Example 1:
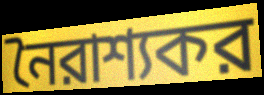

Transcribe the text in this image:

নৈরাশ্যকর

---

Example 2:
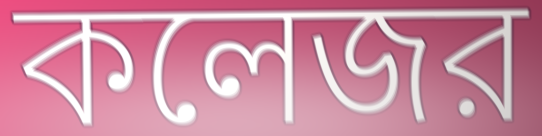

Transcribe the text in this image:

কলেজর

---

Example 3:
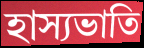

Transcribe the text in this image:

হাস্যভাতি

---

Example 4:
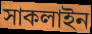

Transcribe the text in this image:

সাকলাইন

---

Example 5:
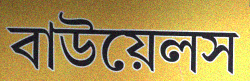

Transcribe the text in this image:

বাউয়েলস